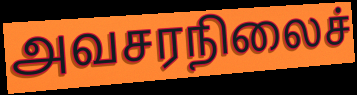
அவசரநிலைச்